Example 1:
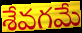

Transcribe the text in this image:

శేవగమే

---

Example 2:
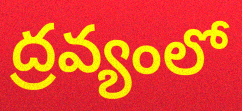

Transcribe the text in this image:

ద్రవ్యంలో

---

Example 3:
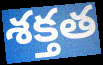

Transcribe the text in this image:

శక్తత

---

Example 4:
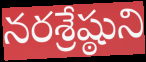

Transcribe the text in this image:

నరశ్రేష్ఠుని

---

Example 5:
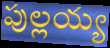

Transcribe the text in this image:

పుల్లయ్య